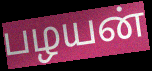
பழயன்